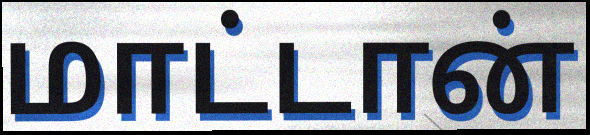
மாட்டான்